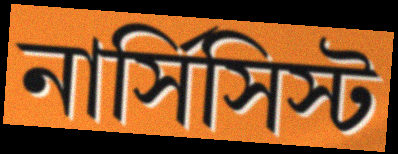
নার্সিসিস্ট